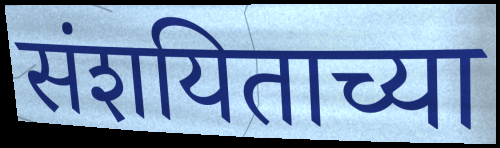
संशयिताच्या